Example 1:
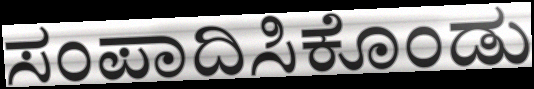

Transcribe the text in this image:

ಸಂಪಾದಿಸಿಕೊಂಡು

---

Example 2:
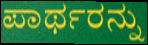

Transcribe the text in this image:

ಪಾರ್ಥರನ್ನು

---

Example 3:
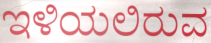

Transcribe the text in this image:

ಇಳಿಯಲಿರುವ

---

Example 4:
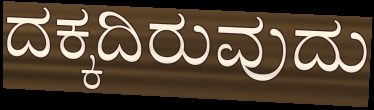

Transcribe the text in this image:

ದಕ್ಕದಿರುವುದು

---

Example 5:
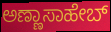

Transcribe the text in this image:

ಅಣ್ಣಾಸಾಹೇಬ್